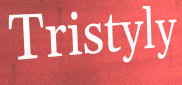
Tristyly